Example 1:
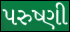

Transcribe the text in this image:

પરુષ્ણી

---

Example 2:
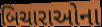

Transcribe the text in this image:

બિચારાઓના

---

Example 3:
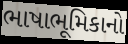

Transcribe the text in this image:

ભાષાભૂમિકાનો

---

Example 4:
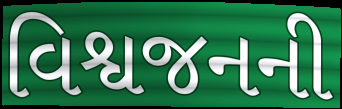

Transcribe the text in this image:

વિશ્વજનની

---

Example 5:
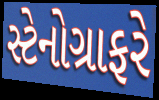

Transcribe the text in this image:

સ્ટેનોગ્રાફરે